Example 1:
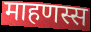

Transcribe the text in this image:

माहणस्स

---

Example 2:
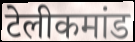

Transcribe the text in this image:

टेलीकमांड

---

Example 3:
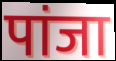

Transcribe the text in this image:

पांजा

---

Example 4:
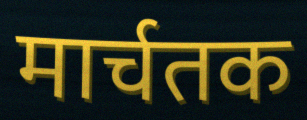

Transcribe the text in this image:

मार्चतक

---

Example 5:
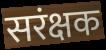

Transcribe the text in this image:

सरंक्षक